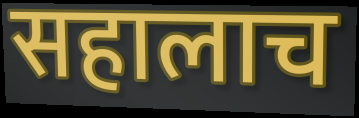
सहालाच